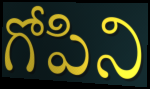
గోపిని